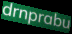
drnprabu